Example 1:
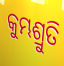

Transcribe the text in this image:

କୁମ୍ଭଶ୍ରୁତି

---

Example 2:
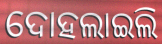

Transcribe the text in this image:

ଦୋହଲାଇଲି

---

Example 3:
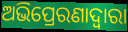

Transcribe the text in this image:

ଅଭିପ୍ରେରଣାଦ୍ୱାରା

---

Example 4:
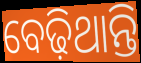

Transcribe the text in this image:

ବେଢ଼ିଥାନ୍ତି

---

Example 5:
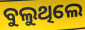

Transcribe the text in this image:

ବୁଲୁଥିଲେ